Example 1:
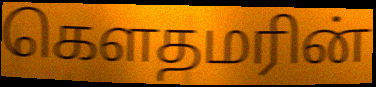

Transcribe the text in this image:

கௌதமரின்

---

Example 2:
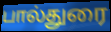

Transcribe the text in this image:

பால்துரை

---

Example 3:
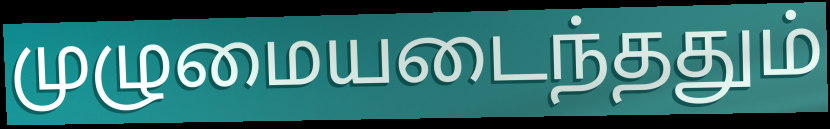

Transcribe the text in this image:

முழுமையடைந்ததும்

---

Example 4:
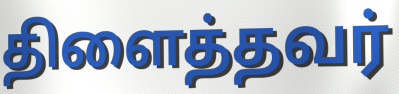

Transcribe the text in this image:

திளைத்தவர்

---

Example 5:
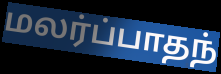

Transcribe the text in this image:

மலர்ப்பாதந்